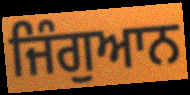
ਜਿੰਗੁਆਨ